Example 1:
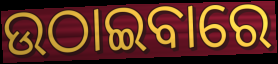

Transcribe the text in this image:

ଉଠାଇବାରେ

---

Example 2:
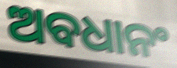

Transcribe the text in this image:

ଅବଧାନଂ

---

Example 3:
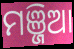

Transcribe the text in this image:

ମଞ୍ଜିଆ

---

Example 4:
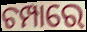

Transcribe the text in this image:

ଚମ୍ପାରେ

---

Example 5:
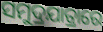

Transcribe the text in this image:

ସମୁଦ୍ରଯାତ୍ରାରେ